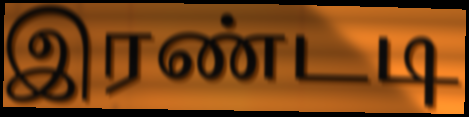
இரண்டடி